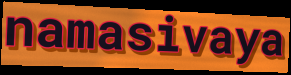
namasivaya